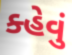
ક્હેવું